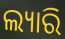
ଲ୍ୟାରି